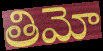
తిమో